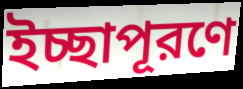
ইচ্ছাপূরণে